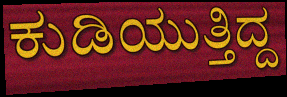
ಕುಡಿಯುತ್ತಿದ್ದ